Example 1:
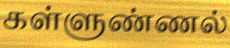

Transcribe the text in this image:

கள்ளுண்ணல்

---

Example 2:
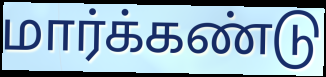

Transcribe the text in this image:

மார்க்கண்டு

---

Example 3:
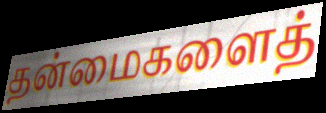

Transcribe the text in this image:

தன்மைகளைத்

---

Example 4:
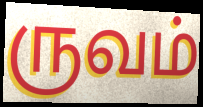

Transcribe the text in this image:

ருவம்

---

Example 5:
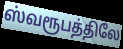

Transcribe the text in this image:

ஸ்வரூபத்திலே